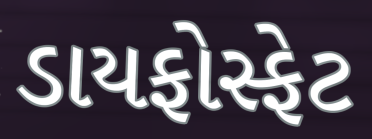
ડાયફોસ્ફેટ